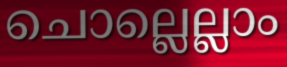
ചൊല്ലെല്ലാം